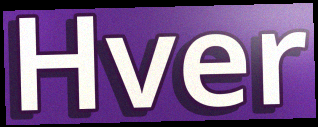
Hver